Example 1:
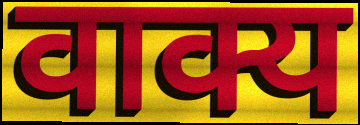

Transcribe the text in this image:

वाक्य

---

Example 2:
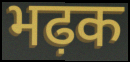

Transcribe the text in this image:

भढ़क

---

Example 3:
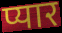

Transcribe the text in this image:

प्‍यार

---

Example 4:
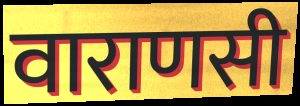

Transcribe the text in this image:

वाराणसी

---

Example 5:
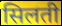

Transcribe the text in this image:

सिलती